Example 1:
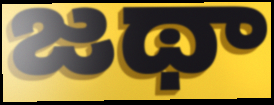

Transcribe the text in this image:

జథా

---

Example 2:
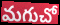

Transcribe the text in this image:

మగుచో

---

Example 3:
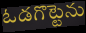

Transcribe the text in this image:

ఓడగొట్టెను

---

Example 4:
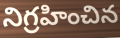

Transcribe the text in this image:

నిగ్రహించిన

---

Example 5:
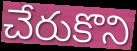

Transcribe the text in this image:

చేరుకొని